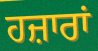
ਹਜ਼ਾਰਾਂ